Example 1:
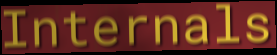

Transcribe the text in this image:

Internals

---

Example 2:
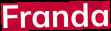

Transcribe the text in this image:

Franda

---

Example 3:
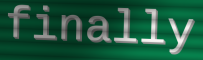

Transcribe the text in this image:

finally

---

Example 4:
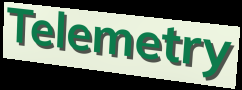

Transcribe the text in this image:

Telemetry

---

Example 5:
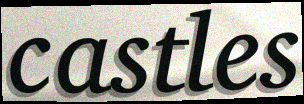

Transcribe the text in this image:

castles